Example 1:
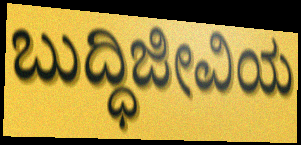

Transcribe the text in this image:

ಬುದ್ಧಿಜೀವಿಯ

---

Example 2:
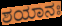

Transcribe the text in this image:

ಶಯಾನಃ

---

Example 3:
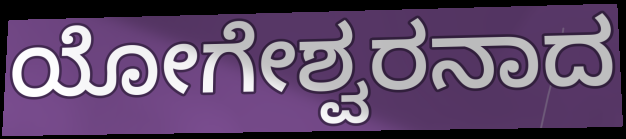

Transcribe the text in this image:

ಯೋಗೇಶ್ವರನಾದ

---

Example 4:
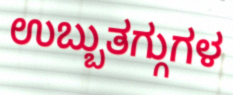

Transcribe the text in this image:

ಉಬ್ಬುತಗ್ಗುಗಳ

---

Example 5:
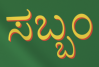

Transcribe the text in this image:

ಸಬ್ಬಂ